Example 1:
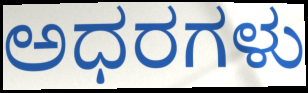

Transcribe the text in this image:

ಅಧರಗಳು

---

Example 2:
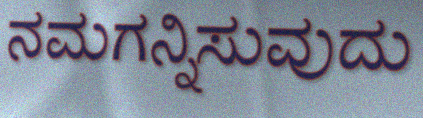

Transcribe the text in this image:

ನಮಗನ್ನಿಸುವುದು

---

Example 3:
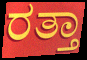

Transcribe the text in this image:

ರತ್ತಾ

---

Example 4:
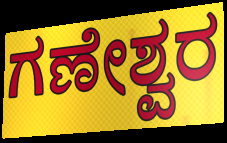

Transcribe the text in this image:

ಗಣೇಶ್ವರ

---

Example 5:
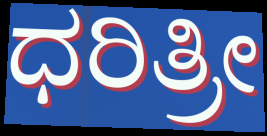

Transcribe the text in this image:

ಧರಿತ್ರೀ